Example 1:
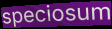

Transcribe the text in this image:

speciosum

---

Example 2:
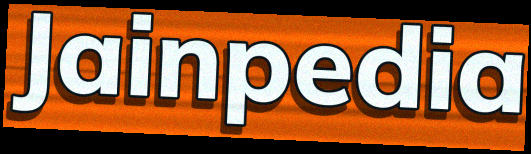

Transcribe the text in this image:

Jainpedia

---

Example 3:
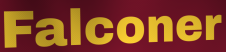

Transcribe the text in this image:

Falconer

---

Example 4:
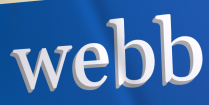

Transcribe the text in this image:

webb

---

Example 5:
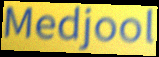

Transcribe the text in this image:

Medjool